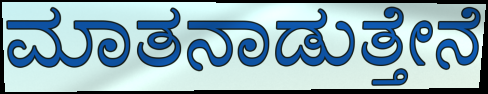
ಮಾತನಾಡುತ್ತೇನೆ